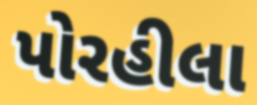
પોરહીલા